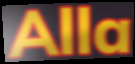
Alla